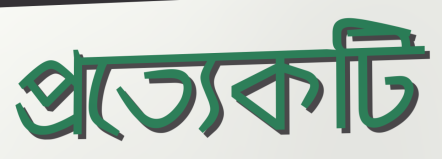
প্ৰত্যেকটি